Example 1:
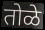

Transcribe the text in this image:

तोळे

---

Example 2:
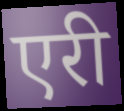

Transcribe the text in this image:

एरी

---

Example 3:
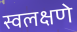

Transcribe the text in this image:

स्वलक्षणे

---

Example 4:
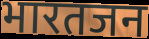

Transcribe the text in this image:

भारतजन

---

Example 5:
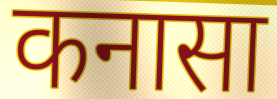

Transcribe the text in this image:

कनासा